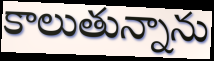
కాలుతున్నాను